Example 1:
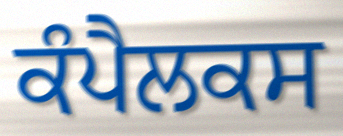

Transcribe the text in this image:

ਕੰਪੈਲਕਸ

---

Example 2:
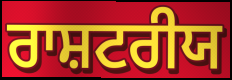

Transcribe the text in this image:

ਰਾਸ਼ਟਰੀਯ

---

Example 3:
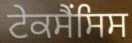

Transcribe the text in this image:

ਟੇਕਸੈਂਸਿਸ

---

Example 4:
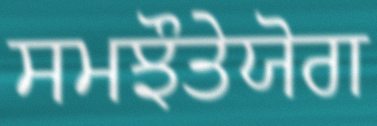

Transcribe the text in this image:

ਸਮਝੌਤੇਯੋਗ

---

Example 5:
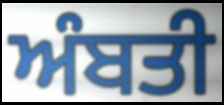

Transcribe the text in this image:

ਅੰਬਤੀ